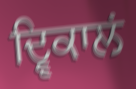
ਦ੍ਵਿਕਾਲਂ